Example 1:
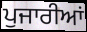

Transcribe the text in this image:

ਪੁਜਾਰੀਆਂ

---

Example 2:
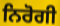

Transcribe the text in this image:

ਨਿਰੋਗੀ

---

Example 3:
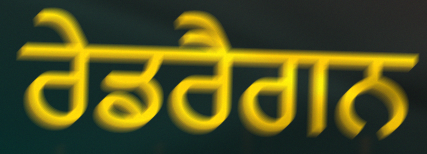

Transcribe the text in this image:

ਰੇਡਰੈਗਨ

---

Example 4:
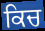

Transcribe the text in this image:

ਕਿਚ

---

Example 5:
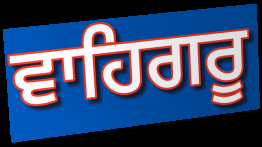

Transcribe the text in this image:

ਵਾਹਿਗਰੂ